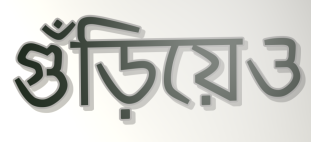
গুঁড়িয়েও